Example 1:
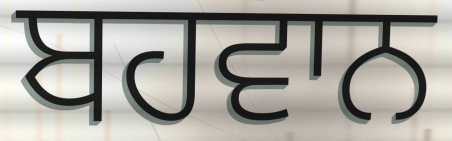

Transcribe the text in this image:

ਬਹਵਾਨ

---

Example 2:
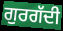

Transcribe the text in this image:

ਗੁਰਗੱਦੀ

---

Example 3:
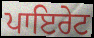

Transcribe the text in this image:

ਪਾਇਰੇਟ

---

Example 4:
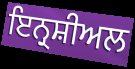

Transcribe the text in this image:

ਇਨ੍ਰਸ਼ੀਅਲ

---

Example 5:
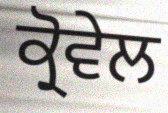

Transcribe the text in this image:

ਕ੍ਰੋਵੇਲ